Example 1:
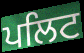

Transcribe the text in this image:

ਪਲਿਟ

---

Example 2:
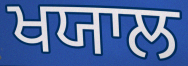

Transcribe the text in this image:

ਖਯਾਲ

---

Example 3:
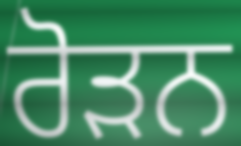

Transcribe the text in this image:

ਰੋੜਨ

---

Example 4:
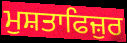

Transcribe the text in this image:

ਮੁਸ਼ਤਾਫਿਜ਼ੁਰ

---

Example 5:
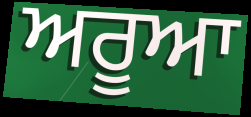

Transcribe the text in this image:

ਅਰੂਆ